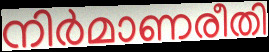
നിർമാണരീതി